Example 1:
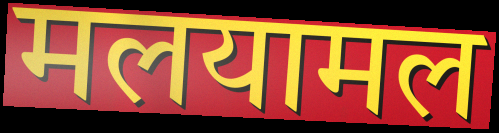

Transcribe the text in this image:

मलयामल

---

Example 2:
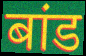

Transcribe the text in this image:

बांड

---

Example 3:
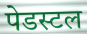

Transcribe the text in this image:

पेडस्टल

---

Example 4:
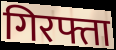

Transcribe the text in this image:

गिरफ्ता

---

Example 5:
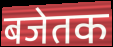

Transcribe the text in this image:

बजेतक